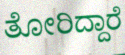
ತೋರಿದ್ದಾರೆ